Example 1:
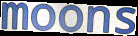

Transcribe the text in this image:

moons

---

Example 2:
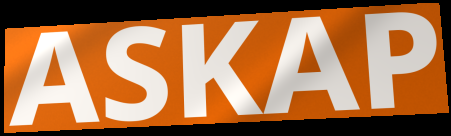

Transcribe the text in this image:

ASKAP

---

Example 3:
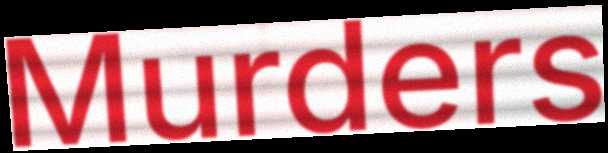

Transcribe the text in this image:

Murders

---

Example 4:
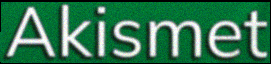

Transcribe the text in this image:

Akismet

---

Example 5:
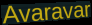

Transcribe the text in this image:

Avaravar